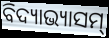
ବିଦ୍ୟାଭ୍ୟାସମ୍